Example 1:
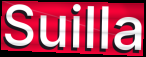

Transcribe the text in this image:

Suilla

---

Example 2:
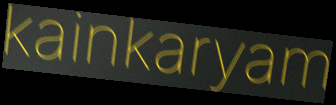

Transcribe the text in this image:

kainkaryam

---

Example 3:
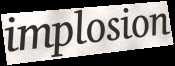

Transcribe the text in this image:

implosion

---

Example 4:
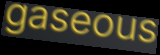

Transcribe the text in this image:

gaseous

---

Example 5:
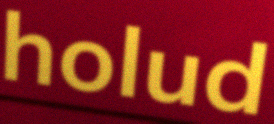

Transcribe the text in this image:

holud